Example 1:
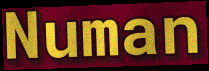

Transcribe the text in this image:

Numan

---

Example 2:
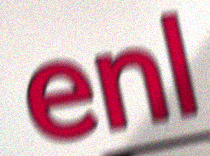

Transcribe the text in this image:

enl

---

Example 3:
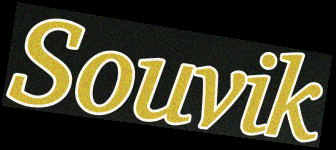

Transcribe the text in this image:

Souvik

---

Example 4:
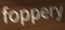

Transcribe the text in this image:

foppery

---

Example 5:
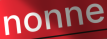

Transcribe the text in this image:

nonne